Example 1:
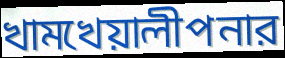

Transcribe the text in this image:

খামখেয়ালীপনার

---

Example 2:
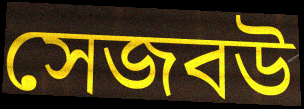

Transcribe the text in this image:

সেজবউ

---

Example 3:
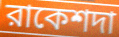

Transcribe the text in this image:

রাকেশদা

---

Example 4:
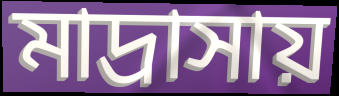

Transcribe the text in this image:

মাদ্রাসায়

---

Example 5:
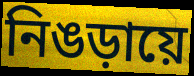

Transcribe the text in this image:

নিঙড়ায়ে